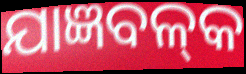
ଯାଜ୍ଞବଳ୍‍କ